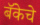
बॅकेचे